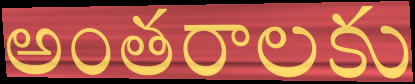
అంతరాలకు